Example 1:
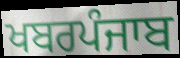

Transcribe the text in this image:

ਖਬਰਪੰਜਾਬ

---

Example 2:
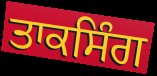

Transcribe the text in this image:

ਤਾਕਸਿੰਗ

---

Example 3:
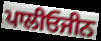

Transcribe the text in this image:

ਪਾਲੀਓਜੀਨ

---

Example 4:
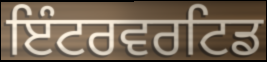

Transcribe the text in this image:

ਇੰਟਰਵਰਟਿਡ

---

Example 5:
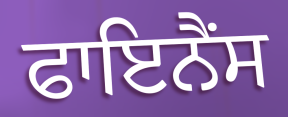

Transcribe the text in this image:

ਫਾਇਨੈਂਸ